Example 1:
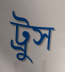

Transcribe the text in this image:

ট্রুস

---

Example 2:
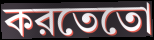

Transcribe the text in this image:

করতেতো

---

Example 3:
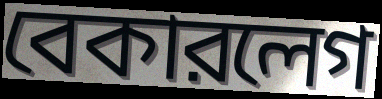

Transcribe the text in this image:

বেকারলেগ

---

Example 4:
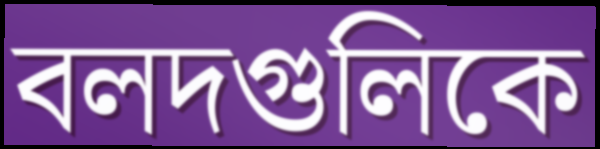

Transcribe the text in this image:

বলদগুলিকে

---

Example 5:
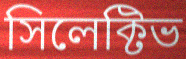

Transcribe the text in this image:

সিলেক্টিভ